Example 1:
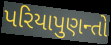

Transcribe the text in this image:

પરિયાપુણન્તો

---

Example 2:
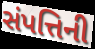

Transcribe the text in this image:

સંપત્તિની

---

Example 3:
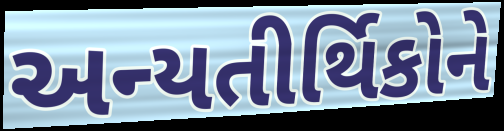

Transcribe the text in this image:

અન્યતીર્થિકોને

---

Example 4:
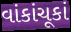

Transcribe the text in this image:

વાંકાંચૂકાં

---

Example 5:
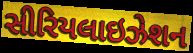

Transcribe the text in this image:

સીરિયલાઇઝેશન